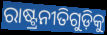
ରାଷ୍ଟ୍ରନୀତିଗୁଡ଼ିକୁ